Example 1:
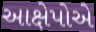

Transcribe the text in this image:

આક્ષેપોએ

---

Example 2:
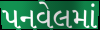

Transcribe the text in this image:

પનવેલમાં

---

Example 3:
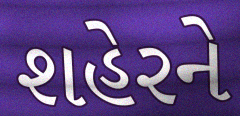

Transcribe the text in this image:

શહેરને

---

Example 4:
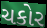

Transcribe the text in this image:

ચકોર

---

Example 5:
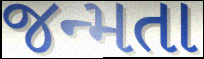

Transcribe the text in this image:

જન્મતા